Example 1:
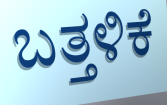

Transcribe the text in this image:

ಬತ್ತಳಿಕೆ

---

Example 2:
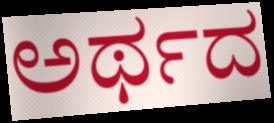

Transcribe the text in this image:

ಅರ್ಥದ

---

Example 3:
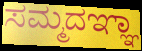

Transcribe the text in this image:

ಸಮ್ಮದಞ್ಞಾ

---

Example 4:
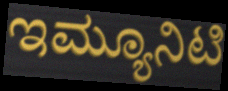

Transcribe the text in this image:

ಇಮ್ಯೂನಿಟಿ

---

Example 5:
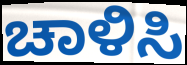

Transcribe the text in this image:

ಚಾಳಿಸಿ